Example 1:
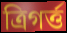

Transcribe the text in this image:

ত্রিগর্ত্ত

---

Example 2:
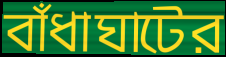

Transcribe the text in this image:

বাঁধাঘাটের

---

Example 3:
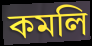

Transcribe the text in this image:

কমলি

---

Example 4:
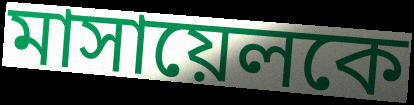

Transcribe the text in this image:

মাসায়েলকে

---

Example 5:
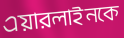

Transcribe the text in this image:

এয়ারলাইনকে